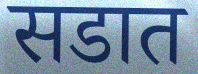
सडात